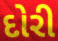
દોરી